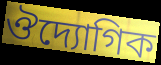
ঔদ্যোগিক